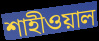
শাহীওয়াল